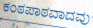
ಕಂಠಪಾಠವಾದವು